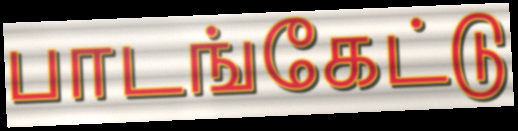
பாடங்கேட்டு